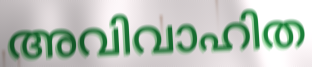
അവിവാഹിത